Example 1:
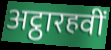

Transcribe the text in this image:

अट्ठारहवीं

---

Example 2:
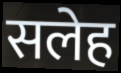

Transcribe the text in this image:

सलेह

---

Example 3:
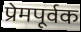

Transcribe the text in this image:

प्रेमपूर्वक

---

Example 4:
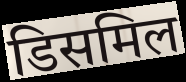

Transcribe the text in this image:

डिसमिल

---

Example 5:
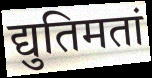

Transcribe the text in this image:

द्युतिमतां